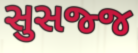
સુસજ્જ